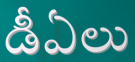
డీఏలు